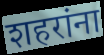
शहरांना